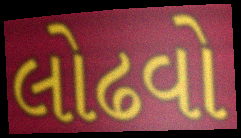
લોઢવો